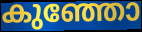
കുഞ്ഞോ